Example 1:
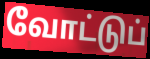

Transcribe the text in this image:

வோட்டுப்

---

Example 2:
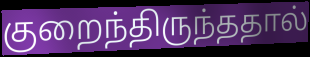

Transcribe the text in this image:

குறைந்திருந்ததால்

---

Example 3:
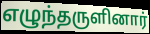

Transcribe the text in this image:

எழுந்தருளினார்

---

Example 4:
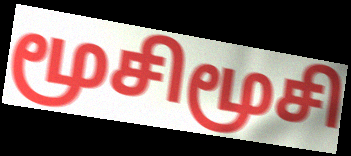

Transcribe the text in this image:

மூசிமூசி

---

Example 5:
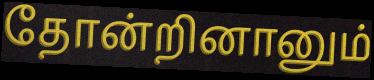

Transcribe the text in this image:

தோன்றினானும்